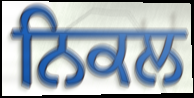
ਨਿਕਲ